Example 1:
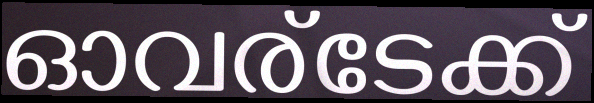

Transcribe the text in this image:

ഓവര്ടേക്ക്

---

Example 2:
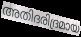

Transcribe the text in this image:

അതിദരിദ്രമായ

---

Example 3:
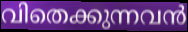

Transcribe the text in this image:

വിതെക്കുന്നവൻ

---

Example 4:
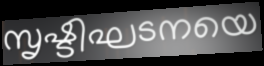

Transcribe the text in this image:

സൃഷ്ടിഘടനയെ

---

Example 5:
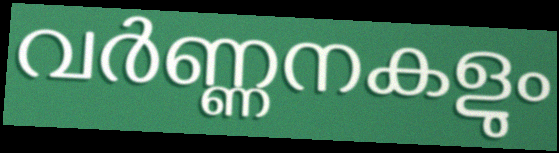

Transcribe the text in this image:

വർണ്ണനകളും